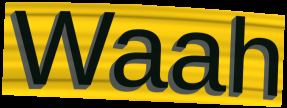
Waah